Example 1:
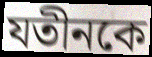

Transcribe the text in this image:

যতীনকে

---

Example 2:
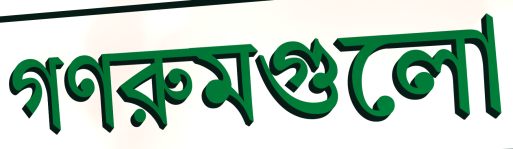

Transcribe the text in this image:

গণরুমগুলো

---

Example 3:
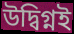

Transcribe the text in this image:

উদ্বিগ্নই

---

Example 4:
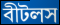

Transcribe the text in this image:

বীটলস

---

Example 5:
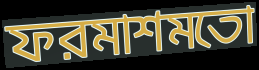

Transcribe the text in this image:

ফরমাশমতো